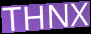
THNX